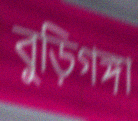
বুড়িগঙ্গা